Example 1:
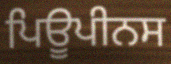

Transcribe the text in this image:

ਪਿਊਪੀਨਸ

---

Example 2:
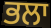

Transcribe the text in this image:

ਭਲਾ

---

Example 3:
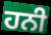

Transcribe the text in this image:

ਹਨੀ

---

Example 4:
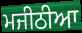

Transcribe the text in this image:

ਮਜੀਠੀਆ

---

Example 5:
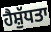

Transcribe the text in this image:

ਹੈਸ਼ੁੱਧਤਾ